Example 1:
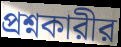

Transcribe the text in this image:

প্রশ্নকারীর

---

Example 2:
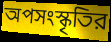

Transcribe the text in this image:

অপসংস্কৃতির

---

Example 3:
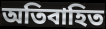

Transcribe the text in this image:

অতিবাহিত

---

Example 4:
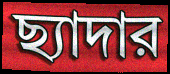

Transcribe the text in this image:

ছ্যাদার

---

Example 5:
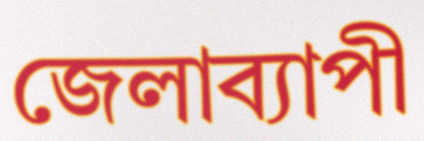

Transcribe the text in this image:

জেলাব্যাপী